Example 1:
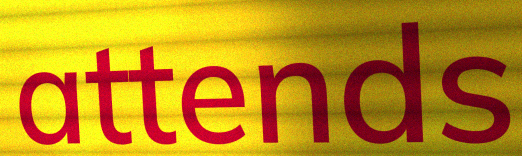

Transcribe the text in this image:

attends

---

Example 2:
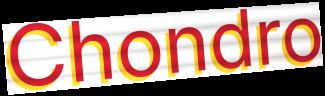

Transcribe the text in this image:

Chondro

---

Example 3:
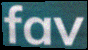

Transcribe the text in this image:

fav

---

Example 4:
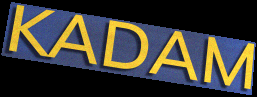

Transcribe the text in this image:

KADAM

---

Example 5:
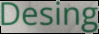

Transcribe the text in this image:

Desing